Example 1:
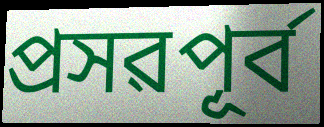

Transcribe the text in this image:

প্ৰসৱপূৰ্ব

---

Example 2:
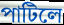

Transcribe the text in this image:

পাটিলে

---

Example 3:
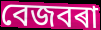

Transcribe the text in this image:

বেজবৰা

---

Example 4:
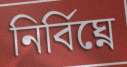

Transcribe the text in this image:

নিৰ্বিঘ্নে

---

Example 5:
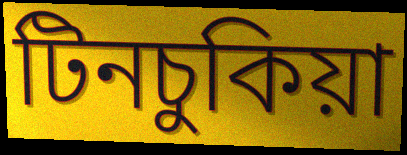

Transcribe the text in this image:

টিনচুকিয়া